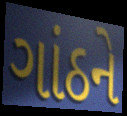
ગાંઠને